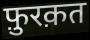
फ़ुरक़त